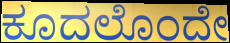
ಕೂದಲೊಂದೇ